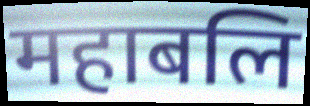
महाबलि